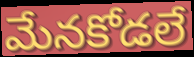
మేనకోడలే